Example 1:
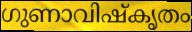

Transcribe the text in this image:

ഗുണാവിഷ്കൃതം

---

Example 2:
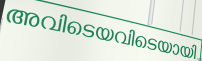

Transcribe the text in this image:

അവിടെയവിടെയായി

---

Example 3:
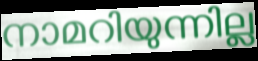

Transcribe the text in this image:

നാമറിയുന്നില്ല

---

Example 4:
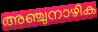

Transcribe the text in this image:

അഞ്ചുനാഴിക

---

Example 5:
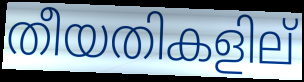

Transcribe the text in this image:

തീയതികളില്